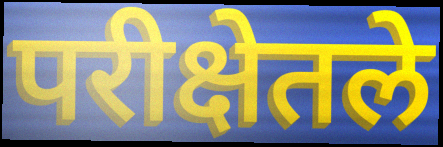
परीक्षेतले